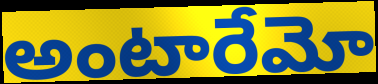
అంటారేమో